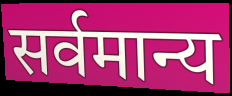
सर्वमान्य